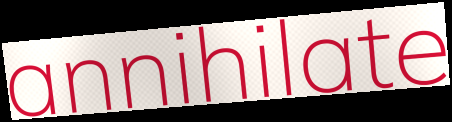
annihilate